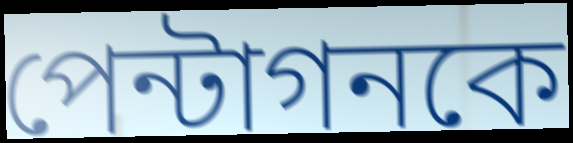
পেন্টাগনকে